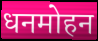
धनमोहन